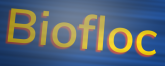
Biofloc